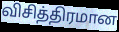
விசித்திரமான